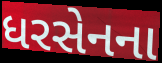
ધરસેનના